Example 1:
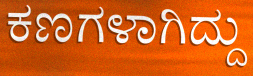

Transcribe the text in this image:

ಕಣಗಳಾಗಿದ್ದು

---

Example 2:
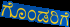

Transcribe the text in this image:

ಗೊಂಡರಿಗೆ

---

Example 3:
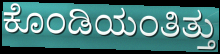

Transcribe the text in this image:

ಕೊಂಡಿಯಂತಿತ್ತು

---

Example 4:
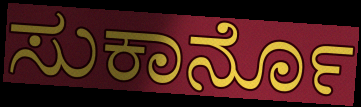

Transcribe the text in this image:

ಸುಕಾರ್ನೊ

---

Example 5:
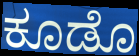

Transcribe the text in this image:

ಕೂಡೊ